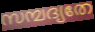
സമ്പദ്യതേ